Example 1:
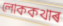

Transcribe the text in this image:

লোককথাৰ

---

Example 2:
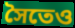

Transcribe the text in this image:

সৈতেও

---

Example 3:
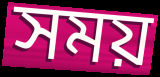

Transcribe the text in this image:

সময়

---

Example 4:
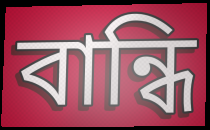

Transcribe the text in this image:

বান্ধি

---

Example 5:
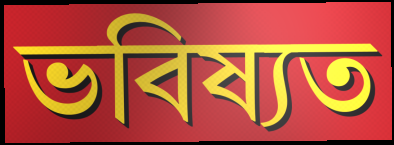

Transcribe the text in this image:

ভবিষ্যত